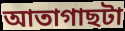
আতাগাছটা